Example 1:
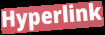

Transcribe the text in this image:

Hyperlink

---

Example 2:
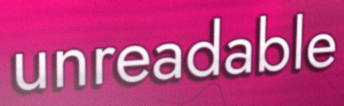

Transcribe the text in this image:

unreadable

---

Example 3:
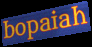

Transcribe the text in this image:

bopaiah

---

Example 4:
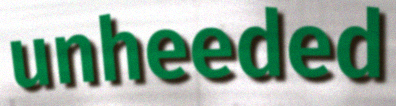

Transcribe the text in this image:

unheeded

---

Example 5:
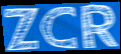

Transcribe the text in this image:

ZCR